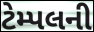
ટેમ્પલની